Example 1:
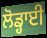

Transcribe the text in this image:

ਲੋਡ੍ਹਾਈ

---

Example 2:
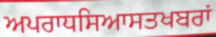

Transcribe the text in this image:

ਅਪਰਾਧਸਿਆਸਤਖਬਰਾਂ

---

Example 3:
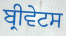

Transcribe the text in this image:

ਬ੍ਰੀਵੇਟਸ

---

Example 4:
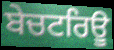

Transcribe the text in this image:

ਬੇਚਟਰਿਊ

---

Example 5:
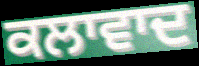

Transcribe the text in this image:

ਕਲਾਵਾਦ